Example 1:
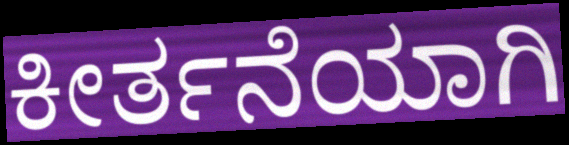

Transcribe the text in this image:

ಕೀರ್ತನೆಯಾಗಿ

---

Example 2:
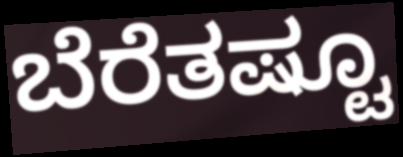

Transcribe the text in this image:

ಬೆರೆತಷ್ಟೂ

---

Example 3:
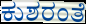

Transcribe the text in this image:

ಕುಶರಂತೆ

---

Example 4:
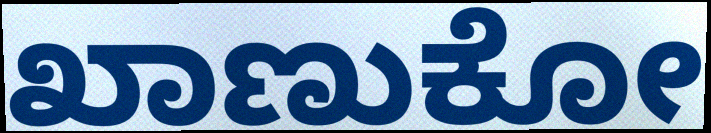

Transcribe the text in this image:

ಖಾಣುಕೋ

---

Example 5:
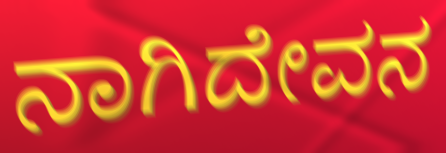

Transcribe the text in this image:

ನಾಗಿದೇವನ